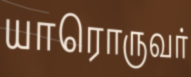
யாரொருவர்